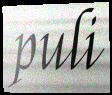
puli